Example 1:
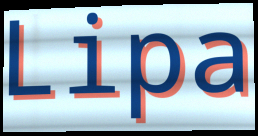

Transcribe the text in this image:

Lipa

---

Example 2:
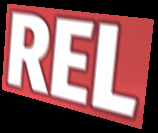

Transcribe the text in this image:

REL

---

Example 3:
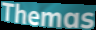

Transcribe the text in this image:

Themas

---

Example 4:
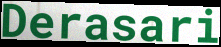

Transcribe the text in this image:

Derasari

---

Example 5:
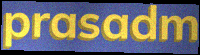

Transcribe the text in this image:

prasadm